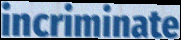
incriminate